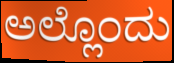
ಅಲ್ಲೊಂದು